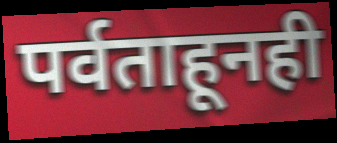
पर्वताहूनही